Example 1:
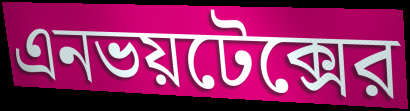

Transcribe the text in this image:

এনভয়টেক্সের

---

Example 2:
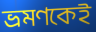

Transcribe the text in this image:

ভ্রমণকেই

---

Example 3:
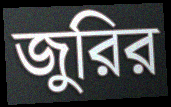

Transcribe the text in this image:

জুরির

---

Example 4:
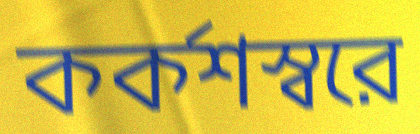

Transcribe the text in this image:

কর্কশস্বরে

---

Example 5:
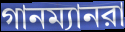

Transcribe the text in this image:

গানম্যানরা